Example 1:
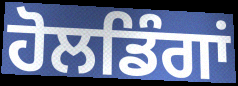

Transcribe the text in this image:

ਹੋਲਡਿੰਗਾਂ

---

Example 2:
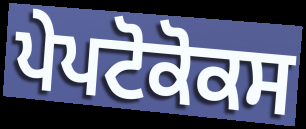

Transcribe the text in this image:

ਪੇਪਟੋਕੋਕਸ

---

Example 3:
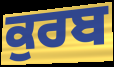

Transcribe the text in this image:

ਕੁਰਬ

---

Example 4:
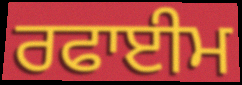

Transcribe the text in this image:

ਰਫਾਈਮ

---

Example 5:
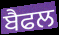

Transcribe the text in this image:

ਬੈਫਲ